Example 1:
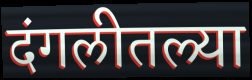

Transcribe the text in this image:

दंगलीतल्या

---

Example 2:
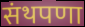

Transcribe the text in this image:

संथपणा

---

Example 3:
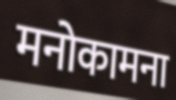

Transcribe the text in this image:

मनोकामना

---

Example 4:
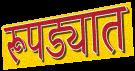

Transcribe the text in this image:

रूपड्यात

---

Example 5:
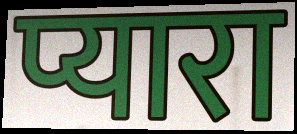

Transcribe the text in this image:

प्यारा